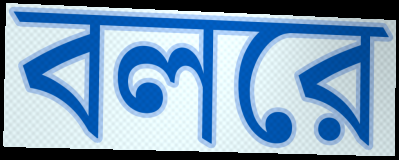
বলরে